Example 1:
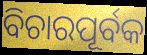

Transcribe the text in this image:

ବିଚାରପୂର୍ବକ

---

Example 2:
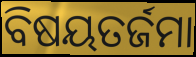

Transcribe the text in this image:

ବିଷୟତର୍ଜମା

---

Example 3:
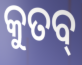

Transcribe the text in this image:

କୁତବ୍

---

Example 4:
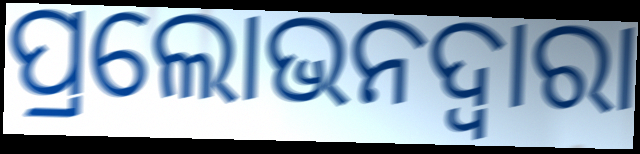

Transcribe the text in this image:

ପ୍ରଲୋଭନଦ୍ୱାରା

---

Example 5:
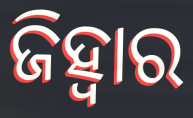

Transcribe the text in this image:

ଜିହ୍ଵାର